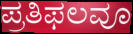
ಪ್ರತಿಫಲವೂ